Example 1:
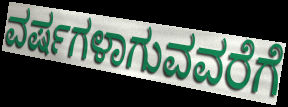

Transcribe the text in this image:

ವರ್ಷಗಳಾಗುವವರೆಗೆ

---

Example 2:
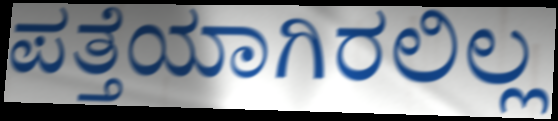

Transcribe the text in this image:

ಪತ್ತೆಯಾಗಿರಲಿಲ್ಲ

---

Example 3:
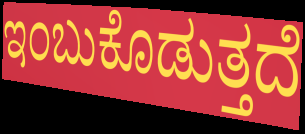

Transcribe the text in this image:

ಇಂಬುಕೊಡುತ್ತದೆ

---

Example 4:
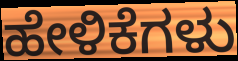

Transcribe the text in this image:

ಹೇಳಿಕೆಗಳು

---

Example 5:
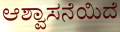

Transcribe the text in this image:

ಆಶ್ವಾಸನೆಯಿದೆ